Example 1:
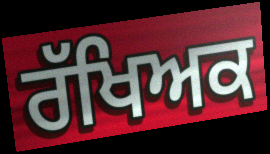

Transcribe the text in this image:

ਰੱਖਿਅਕ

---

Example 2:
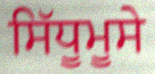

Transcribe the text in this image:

ਸਿੱਧੂਮੂਸੇ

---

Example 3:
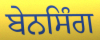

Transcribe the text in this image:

ਬੇਨਸਿੰਗ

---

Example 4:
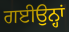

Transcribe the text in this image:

ਗਈਉਨ੍ਹਾਂ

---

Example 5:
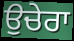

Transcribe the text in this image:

ਉਚੇਰਾ